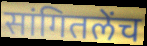
सांगितलेंच